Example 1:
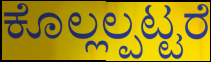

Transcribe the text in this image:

ಕೊಲ್ಲಲ್ಪಟ್ಟರೆ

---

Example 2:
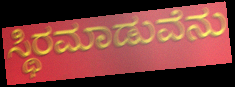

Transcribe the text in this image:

ಸ್ಥಿರಮಾಡುವೆನು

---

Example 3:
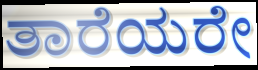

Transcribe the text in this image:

ತಾರೆಯರೇ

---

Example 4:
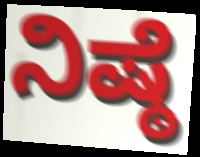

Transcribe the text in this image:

ನಿಷ್ಠೆ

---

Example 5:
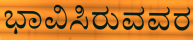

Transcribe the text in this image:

ಭಾವಿಸಿರುವವರ